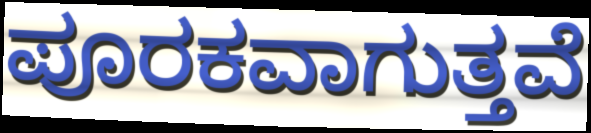
ಪೂರಕವಾಗುತ್ತವೆ